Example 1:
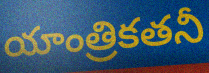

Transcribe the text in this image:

యాంత్రికతనీ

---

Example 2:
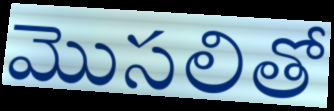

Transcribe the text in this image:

మొసలితో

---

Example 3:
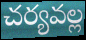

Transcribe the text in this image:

చర్యవల్ల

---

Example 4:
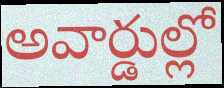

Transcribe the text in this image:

అవార్డుల్లో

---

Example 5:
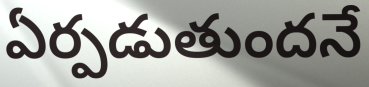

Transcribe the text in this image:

ఏర్పడుతుందనే